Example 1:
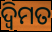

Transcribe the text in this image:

ଦ୍ୱିମତ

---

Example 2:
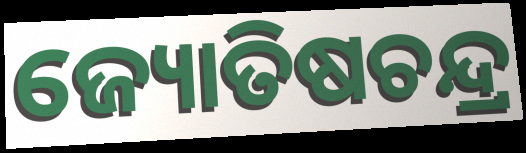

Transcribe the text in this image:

ଜ୍ୟୋତିଷଚନ୍ଦ୍ର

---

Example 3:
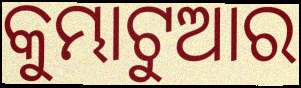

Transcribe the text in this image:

କୁମ୍ଭାଟୁଆର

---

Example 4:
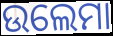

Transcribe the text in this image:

ଉଲେମା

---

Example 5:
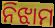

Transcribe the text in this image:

ନିଝାମ